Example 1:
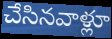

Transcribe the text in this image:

చేసినవాళ్లూ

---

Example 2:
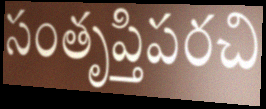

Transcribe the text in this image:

సంతృప్తిపరచి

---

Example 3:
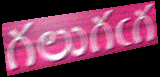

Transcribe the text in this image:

గలుగఁగ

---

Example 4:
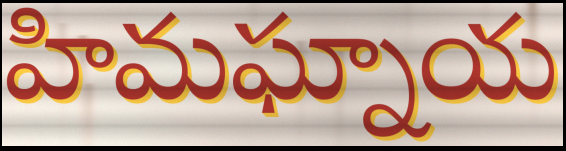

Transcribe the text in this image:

హిమఘ్నాయ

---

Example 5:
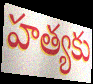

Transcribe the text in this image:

హత్యకు